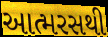
આત્મરસથી